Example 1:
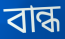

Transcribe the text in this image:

বান্ধ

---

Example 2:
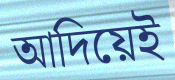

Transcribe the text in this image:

আদিয়েই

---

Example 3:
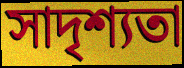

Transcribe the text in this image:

সাদৃশ্যতা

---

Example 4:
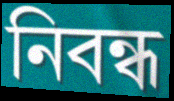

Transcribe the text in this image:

নিবন্ধ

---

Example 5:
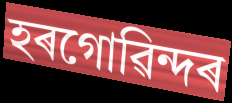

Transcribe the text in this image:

হৰগোৱিন্দৰ